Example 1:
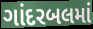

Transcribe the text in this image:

ગાંદરબલમાં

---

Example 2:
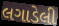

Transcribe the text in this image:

લગાડેલી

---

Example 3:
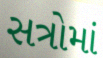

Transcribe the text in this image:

સત્રોમાં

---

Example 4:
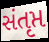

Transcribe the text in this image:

સંતૃપ્ત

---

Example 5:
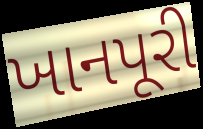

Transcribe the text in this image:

ખાનપૂરી